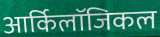
आर्किलॉजिकल